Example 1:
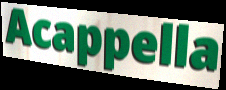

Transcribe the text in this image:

Acappella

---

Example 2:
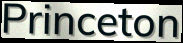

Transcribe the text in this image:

Princeton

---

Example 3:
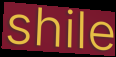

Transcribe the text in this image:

shile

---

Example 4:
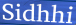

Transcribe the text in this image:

Sidhhi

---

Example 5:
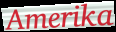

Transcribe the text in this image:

Amerika